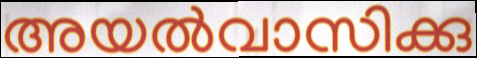
അയൽവാസിക്കു